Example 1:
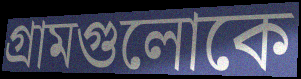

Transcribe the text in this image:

গ্রামগুলোকে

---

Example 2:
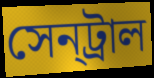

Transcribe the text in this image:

সেন্‌ট্রাল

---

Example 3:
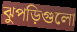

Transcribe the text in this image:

ঝুপড়িগুলো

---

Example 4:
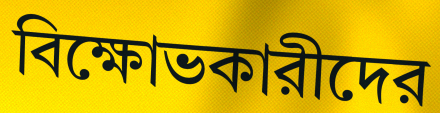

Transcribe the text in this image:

বিক্ষোভকারীদের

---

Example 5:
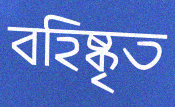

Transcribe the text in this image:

বহিষ্কৃত